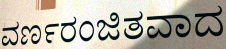
ವರ್ಣರಂಜಿತವಾದ